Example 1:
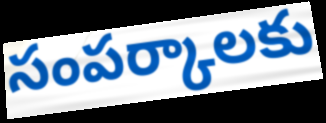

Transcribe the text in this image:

సంపర్కాలకు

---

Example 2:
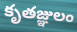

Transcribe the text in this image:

కృతజ్ఞులం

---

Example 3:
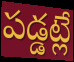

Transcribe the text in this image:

పడ్డట్లే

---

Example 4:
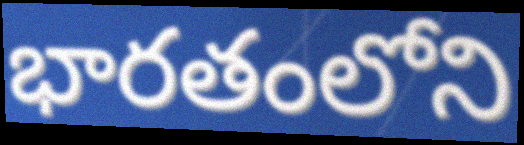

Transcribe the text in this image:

భారతంలోని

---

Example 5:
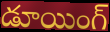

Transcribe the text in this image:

డూయింగ్